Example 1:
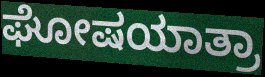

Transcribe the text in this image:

ಘೋಷಯಾತ್ರಾ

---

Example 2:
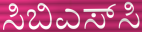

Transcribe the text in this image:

ಸಿಬಿಎಸ್‌ಸಿ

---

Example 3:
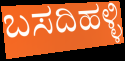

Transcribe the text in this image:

ಬಸದಿಹಳ್ಳಿ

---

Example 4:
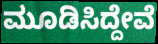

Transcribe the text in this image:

ಮೂಡಿಸಿದ್ದೇವೆ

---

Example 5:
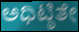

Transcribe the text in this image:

ಅಧಿಟ್ಠಿತೇ